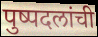
पुष्पदलांची